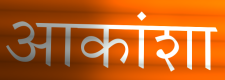
आकांशा